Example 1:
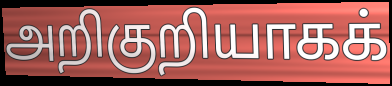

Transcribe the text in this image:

அறிகுறியாகக்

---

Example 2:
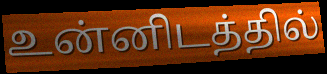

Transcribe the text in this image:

உன்னிடத்தில்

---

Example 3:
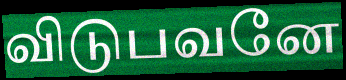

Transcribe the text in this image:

விடுபவனே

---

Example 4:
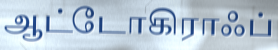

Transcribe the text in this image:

ஆட்டோகிராஃப்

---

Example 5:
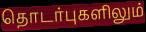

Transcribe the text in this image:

தொடர்புகளிலும்